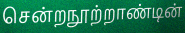
சென்றநூற்றாண்டின்